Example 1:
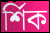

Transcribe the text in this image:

র্শিক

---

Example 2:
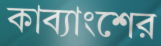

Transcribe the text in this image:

কাব্যাংশের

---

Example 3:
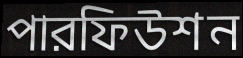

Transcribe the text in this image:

পারফিউশন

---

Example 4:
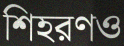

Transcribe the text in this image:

শিহরণও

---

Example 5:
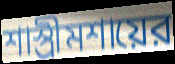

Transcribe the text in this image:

শাস্ত্রীমশায়ের